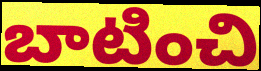
బాటించి